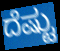
ದೆಷ್ಟು